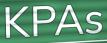
KPAs